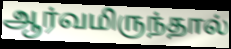
ஆர்வமிருந்தால்